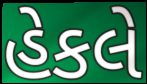
હેકલે